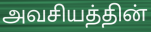
அவசியத்தின்